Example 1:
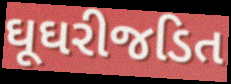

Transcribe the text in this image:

ઘૂઘરીજડિત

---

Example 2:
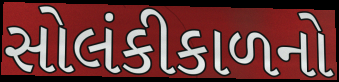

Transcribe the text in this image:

સોલંકીકાળનો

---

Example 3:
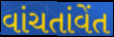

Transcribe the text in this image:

વાંચતાંવેંત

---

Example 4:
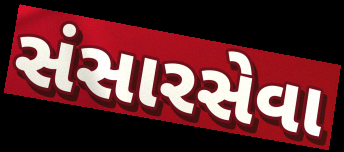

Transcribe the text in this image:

સંસારસેવા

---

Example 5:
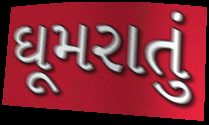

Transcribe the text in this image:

ઘૂમરાતું